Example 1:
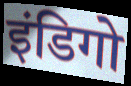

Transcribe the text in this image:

इंडिगो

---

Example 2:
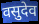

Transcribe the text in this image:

वसुदेव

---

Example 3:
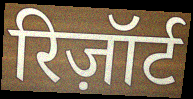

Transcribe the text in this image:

रिज़ॉर्ट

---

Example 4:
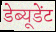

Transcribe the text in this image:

डेब्यूडेंट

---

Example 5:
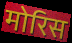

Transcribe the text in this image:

मोरिस